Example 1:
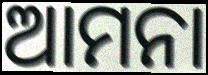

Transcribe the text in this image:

ଆମନା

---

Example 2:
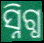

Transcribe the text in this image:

ସ୍ନିଗ୍ଧ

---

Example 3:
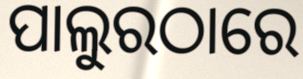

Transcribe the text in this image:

ପାଲୁରଠାରେ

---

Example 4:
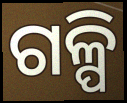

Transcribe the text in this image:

ଗଳ୍ପି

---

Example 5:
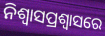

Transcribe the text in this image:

ନିଶ୍ୱାସପ୍ରଶ୍ୱାସରେ